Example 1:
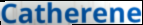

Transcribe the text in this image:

Catherene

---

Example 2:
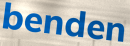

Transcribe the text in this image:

benden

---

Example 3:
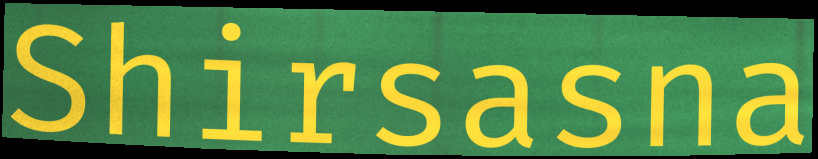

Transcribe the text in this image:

Shirsasna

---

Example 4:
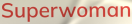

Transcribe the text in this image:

Superwoman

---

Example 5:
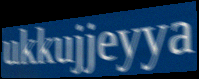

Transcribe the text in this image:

ukkujjeyya